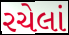
રચેલાં